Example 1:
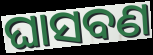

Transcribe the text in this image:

ଘାସବଣ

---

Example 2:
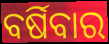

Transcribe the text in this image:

ବର୍ଷିବାର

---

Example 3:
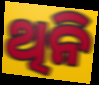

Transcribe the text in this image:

ଥିନି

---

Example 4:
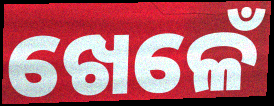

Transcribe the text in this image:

ଖେଳେଁ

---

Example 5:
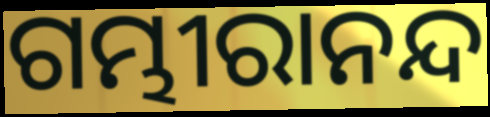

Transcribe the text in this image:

ଗମ୍ଭୀରାନନ୍ଦ